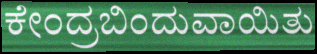
ಕೇಂದ್ರಬಿಂದುವಾಯಿತು